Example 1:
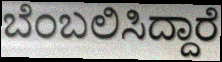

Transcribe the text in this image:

ಬೆಂಬಲಿಸಿದ್ದಾರೆ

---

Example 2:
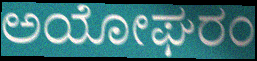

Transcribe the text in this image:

ಅಯೋಘರಂ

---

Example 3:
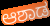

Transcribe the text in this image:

ಆಶಾಡ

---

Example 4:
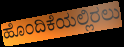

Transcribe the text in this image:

ಹೊಂದಿಕೆಯಲ್ಲಿರಲು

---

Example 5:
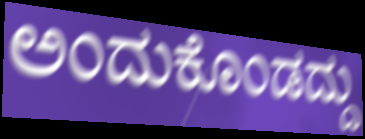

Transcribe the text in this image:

ಅಂದುಕೊಂಡದ್ದು